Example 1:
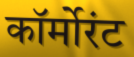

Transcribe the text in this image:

कॉर्मोरंट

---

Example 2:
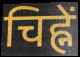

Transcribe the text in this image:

चिह्नें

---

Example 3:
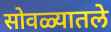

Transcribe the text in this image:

सोवळ्यातले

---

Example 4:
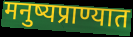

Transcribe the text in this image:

मनुष्यप्राण्यात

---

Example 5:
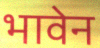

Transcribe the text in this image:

भावेन